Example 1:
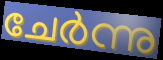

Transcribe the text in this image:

ചേർന്നു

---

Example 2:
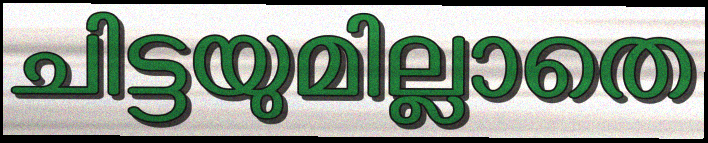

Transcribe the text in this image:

ചിട്ടയുമില്ലാതെ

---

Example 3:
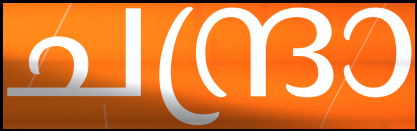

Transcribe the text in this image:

ചന്ദ്രാ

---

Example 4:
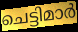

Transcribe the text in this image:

ചെട്ടിമാർ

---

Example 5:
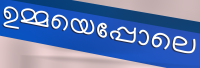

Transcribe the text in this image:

ഉമ്മയെപ്പോലെ